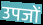
उपजों